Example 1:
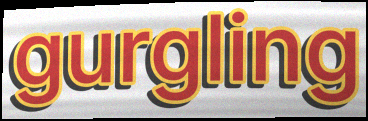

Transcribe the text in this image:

gurgling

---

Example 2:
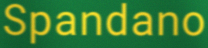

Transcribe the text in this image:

Spandano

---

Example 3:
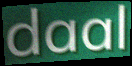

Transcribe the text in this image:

daal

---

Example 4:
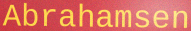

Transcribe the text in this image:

Abrahamsen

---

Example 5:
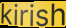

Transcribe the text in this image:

kirish